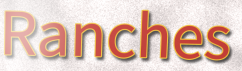
Ranches